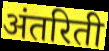
अंतरिती